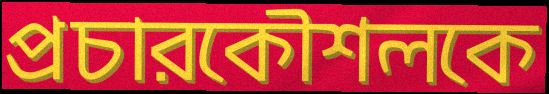
প্রচারকৌশলকে